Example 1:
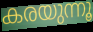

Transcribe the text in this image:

കരയുന്നൂ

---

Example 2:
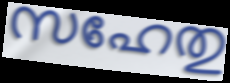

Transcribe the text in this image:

സഹേതു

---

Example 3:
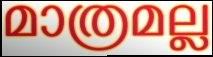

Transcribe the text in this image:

മാത്രമല്ല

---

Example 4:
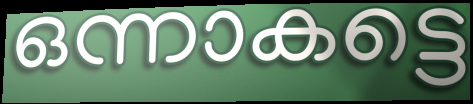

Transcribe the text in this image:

ഒന്നാകട്ടെ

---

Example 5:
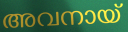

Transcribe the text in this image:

അവനായ്